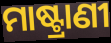
ମାଷ୍ଟ୍ରାଣୀ